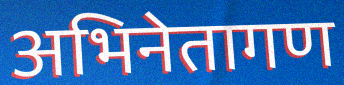
अभिनेतागण